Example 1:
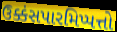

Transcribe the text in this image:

ઉક્કંસપારમિપ્પત્તો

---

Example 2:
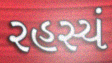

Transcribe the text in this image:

રહસ્યં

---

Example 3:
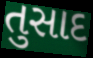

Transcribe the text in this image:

તુસાદ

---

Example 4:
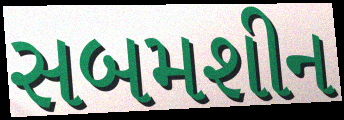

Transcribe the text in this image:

સબમશીન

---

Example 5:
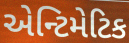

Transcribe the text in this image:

એન્ટિમેટિક